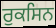
ਰੁਕਸਿਨ